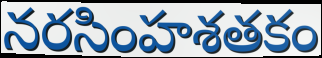
నరసింహశతకం